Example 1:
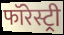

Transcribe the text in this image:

फॉरेस्ट्री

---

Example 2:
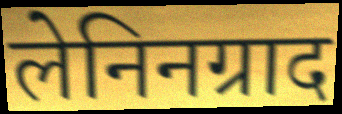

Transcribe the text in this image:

लेनिनग्राद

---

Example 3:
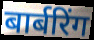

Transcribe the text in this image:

बार्बरिंग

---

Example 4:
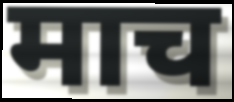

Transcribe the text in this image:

माच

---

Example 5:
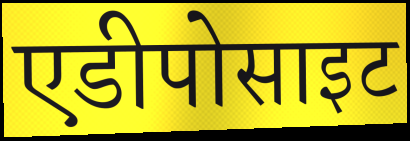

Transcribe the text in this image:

एडीपोसाइट